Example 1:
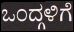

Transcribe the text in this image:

ಒಂದ್ಗಳಿಗೆ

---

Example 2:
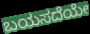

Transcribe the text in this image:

ಬಯಸದೆಯೇ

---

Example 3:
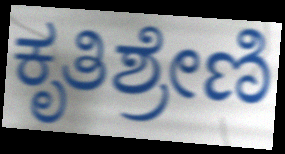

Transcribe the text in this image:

ಕೃತಿಶ್ರೇಣಿ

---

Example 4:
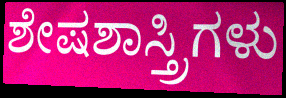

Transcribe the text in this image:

ಶೇಷಶಾಸ್ತ್ರಿಗಳು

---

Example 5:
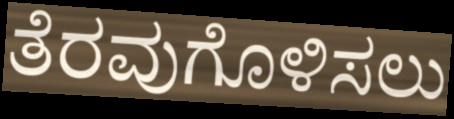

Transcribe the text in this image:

ತೆರವುಗೊಳಿಸಲು